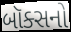
બૉક્સનો